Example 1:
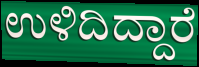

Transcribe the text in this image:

ಉಳಿದಿದ್ದಾರೆ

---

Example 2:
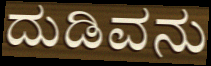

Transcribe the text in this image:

ದುಡಿವನು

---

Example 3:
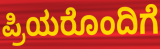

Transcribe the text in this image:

ಪ್ರಿಯರೊಂದಿಗೆ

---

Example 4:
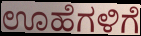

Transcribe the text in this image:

ಊಹೆಗಳಿಗೆ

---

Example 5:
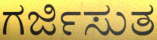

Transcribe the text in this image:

ಗರ್ಜಿಸುತ